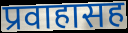
प्रवाहासह